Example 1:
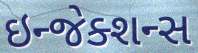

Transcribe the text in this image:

ઇન્જેક્શન્સ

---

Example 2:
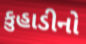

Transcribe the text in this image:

કુહાડીનો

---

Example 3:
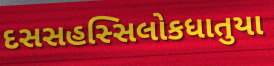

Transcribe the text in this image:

દસસહસ્સિલોકધાતુયા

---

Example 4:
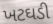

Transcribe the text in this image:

ખટઘડી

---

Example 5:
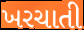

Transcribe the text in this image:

ખરચાતી